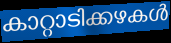
കാറ്റാടിക്കഴകൾ